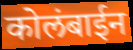
कोलंबाईन